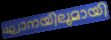
ഘാനയിലുമായി